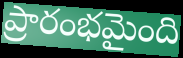
ప్రారంభమైంది